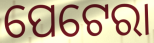
ପେଟେରା